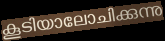
കൂടിയാലോചിക്കുന്നു